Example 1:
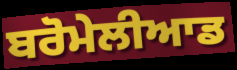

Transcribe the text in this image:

ਬਰੋਮੇਲੀਆਡ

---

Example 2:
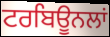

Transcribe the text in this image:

ਟਰਬਿਊਨਲਾਂ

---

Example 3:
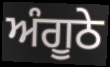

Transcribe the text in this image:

ਅੰਗੂਠੇ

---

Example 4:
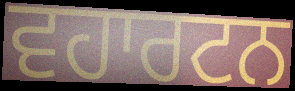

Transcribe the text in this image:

ਵਹਾਰਟਨ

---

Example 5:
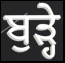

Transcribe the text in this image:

ਬੁੜ੍ਹੇ